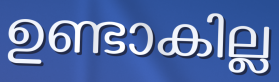
ഉണ്ടാകില്ല